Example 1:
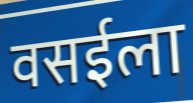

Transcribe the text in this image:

वसईला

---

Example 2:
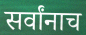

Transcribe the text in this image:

सर्वांनाच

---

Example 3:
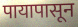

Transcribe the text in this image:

पायापासून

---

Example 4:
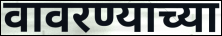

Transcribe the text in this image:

वावरण्याच्या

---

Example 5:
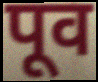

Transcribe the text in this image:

पूव